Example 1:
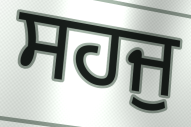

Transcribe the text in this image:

ਸਹਜੁ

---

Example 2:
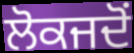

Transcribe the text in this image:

ਲੋਕਜਦੋਂ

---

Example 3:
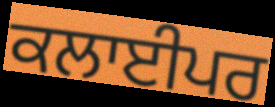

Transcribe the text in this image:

ਕਲਾਈਪਰ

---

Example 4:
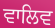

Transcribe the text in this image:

ਵਾਲਿਵ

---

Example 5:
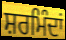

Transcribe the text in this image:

ਸ਼ਰਮਿੰਦਾਂ